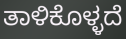
ತಾಳಿಕೊಳ್ಳದೆ